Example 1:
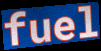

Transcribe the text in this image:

fuel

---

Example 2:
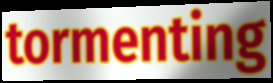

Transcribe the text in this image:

tormenting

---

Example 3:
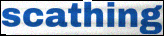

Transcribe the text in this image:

scathing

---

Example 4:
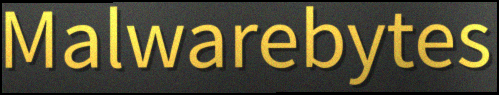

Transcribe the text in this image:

Malwarebytes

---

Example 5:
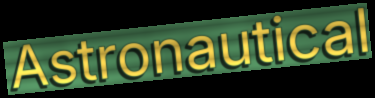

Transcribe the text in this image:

Astronautical